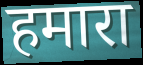
हमारा